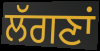
ਲੱਗਣਾਂ